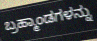
ಬ್ರಹ್ಮಾಂಡಗಳನ್ನು